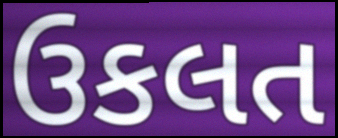
ઉકલત